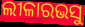
ଲୀଳାରଭସୁ